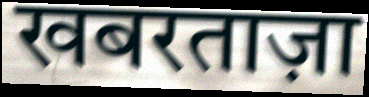
खबरताज़ा